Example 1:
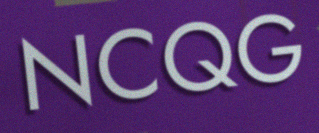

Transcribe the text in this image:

NCQG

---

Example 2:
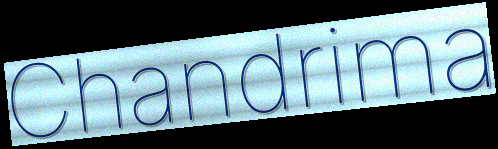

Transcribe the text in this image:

Chandrima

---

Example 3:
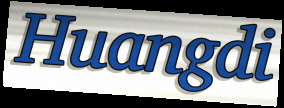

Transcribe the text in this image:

Huangdi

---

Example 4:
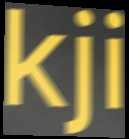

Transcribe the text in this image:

kji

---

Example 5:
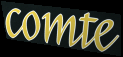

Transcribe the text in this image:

comte